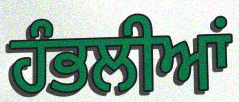
ਹੰਭਲੀਆਂ